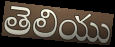
తెలియు